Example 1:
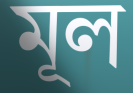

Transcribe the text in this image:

মূল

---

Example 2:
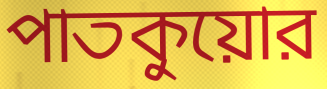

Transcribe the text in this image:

পাতকুয়োর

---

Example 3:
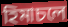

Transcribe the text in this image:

হিমাচলে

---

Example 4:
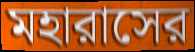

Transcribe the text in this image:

মহারাসের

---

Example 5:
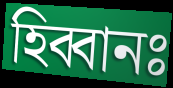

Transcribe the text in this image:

হিব্বানঃ